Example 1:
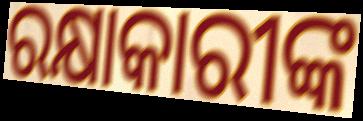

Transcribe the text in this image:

ରକ୍ଷାକାରୀଙ୍କ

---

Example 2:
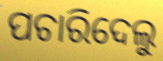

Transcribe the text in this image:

ପଚାରିଦେଲୁ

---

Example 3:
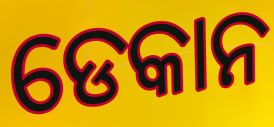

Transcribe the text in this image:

ଡେକାନ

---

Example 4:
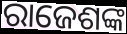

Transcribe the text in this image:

ରାଜେଶଙ୍କ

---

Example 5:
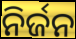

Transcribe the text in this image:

ନିର୍ଜନ